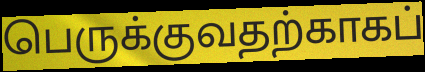
பெருக்குவதற்காகப்